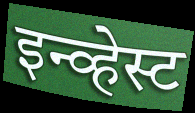
इन्व्हेस्ट